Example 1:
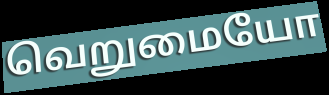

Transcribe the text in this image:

வெறுமையோ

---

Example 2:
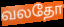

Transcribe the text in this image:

வலதோ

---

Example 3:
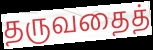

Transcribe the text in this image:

தருவதைத்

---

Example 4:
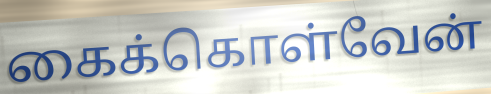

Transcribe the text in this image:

கைக்கொள்வேன்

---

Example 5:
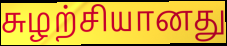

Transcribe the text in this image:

சுழற்சியானது